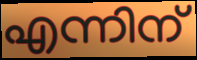
എന്നിന്